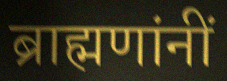
ब्राह्मणांनीं